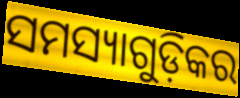
ସମସ୍ୟାଗୁଡ଼ିକର